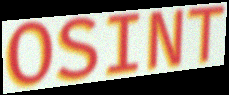
OSINT